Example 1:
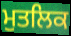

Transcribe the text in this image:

ਮੁਤਲਿਕ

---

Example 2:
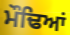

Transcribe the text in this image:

ਮੌਢਿਆਂ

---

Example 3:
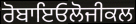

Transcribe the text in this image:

ਰੋਬਾਇਓਲੋਜੀਕਲ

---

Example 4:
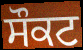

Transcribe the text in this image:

ਸੌਕਟ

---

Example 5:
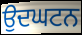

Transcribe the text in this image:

ਉਦਘਟਨ